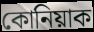
কোনিয়াক